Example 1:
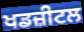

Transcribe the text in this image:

ਖਡਜ਼ੀਟਲ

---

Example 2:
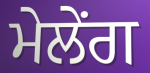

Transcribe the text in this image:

ਮੇਲੇਂਗ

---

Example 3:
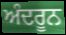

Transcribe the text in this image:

ਅੰਦਰੂਨ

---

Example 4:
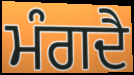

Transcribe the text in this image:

ਮੰਗਦੈ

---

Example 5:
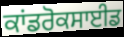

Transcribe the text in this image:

ਕਾਂਡਰੋਕਸਾਈਡ